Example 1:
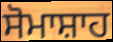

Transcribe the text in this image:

ਸੋਮਾਸ਼ਾਹ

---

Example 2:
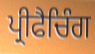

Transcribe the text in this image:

ਪ੍ਰੀਫੈਚਿੰਗ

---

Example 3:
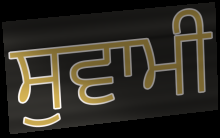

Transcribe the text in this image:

ਸੁਵਾਮੀ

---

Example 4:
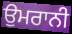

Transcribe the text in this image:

ਉਮਰਾਨੀ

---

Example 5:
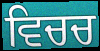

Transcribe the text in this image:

ਵਿਚਚ